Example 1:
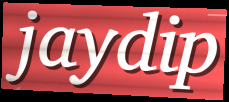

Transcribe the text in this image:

jaydip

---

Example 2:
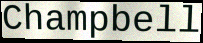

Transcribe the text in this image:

Champbell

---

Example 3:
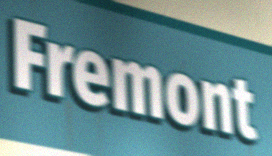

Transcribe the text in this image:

Fremont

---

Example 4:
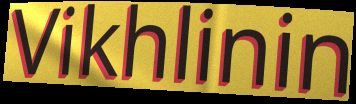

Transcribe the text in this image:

Vikhlinin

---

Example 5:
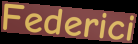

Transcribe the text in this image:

Federici